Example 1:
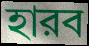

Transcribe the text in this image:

হারব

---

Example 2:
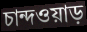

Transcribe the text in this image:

চান্দওয়াড়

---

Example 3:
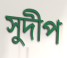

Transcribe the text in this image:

সুদীপ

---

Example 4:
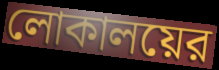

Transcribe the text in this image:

লোকালয়ের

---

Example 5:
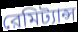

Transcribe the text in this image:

রেমিট্যান্স